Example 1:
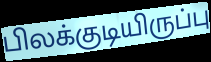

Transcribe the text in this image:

பிலக்குடியிருப்பு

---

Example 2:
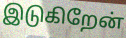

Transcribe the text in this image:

இடுகிறேன்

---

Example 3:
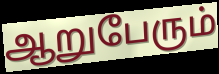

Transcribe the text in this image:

ஆறுபேரும்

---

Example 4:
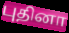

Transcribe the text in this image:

புதினா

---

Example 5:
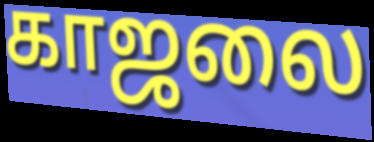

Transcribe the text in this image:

காஜலை